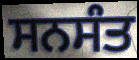
ਸਨਸੰਤ